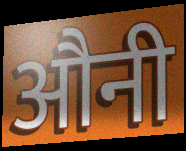
औनी